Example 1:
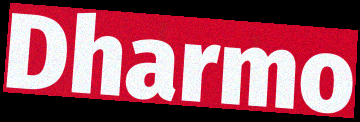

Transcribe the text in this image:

Dharmo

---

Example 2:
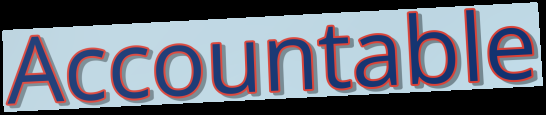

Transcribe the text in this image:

Accountable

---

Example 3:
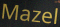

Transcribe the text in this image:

Mazel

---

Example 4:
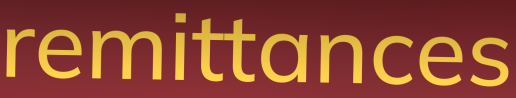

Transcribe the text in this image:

remittances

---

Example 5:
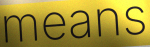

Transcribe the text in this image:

means